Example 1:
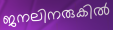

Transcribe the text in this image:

ജനലിനരുകിൽ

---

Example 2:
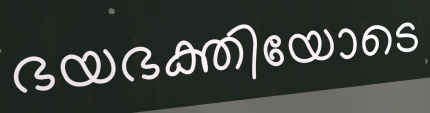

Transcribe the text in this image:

ഭയഭക്തിയോടെ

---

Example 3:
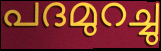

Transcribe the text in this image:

പദമുറച്ചു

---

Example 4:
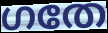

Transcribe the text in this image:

ഗതേ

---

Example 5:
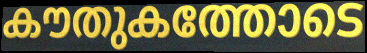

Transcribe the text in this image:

കൗതുകത്തോടെ